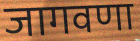
जागवणा